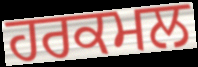
ਹਰਕਮਲ